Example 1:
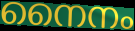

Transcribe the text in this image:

നൈനം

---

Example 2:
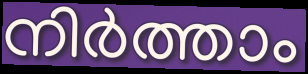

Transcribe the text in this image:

നിർത്താം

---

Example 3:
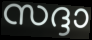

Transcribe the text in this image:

സദ്ദാ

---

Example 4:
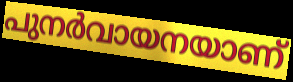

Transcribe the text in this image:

പുനർവായനയാണ്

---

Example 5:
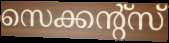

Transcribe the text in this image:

സെക്കന്റ്സ്